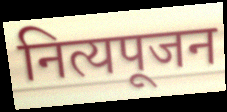
नित्यपूजन